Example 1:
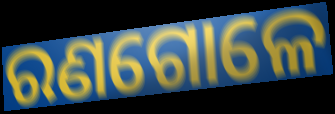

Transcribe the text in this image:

ରଣଗୋଳେ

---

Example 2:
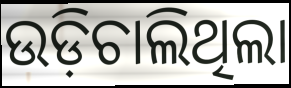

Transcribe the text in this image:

ଉଡ଼ିଚାଲିଥିଲା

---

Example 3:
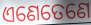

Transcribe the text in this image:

ଏଣେତେଣେ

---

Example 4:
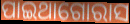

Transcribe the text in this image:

ପାଇଥାଗୋରାସ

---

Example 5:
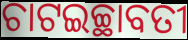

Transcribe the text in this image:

ଚାଟଇଚ୍ଛାବତୀ